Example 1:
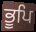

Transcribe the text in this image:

ਭੂਪਿ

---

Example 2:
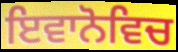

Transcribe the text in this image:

ਇਵਾਨੋਵਿਚ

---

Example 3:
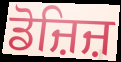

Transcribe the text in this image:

ਡੋਜ਼ਿਜ਼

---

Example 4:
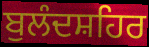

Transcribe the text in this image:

ਬੁਲੰਦਸ਼ਹਿਰ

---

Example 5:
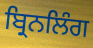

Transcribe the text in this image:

ਬ੍ਰਿਨਲਿੰਗ